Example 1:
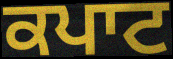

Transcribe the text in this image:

ਕਪਾਟ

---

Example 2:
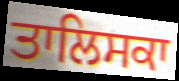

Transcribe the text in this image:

ਤਾਲਿਸਕਾ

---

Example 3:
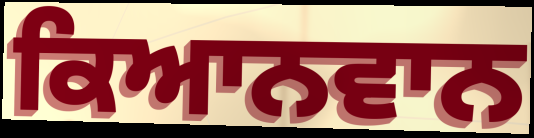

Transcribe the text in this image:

ਕਿਆਨਵਾਨ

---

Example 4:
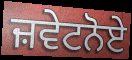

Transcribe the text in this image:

ਜ਼ਵੇਟਨੋਏ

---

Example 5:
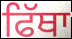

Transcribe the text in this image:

ਫਿੱਥਾ